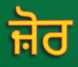
ਜ਼ੋਰ